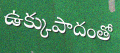
ఉక్కుపాదంతో